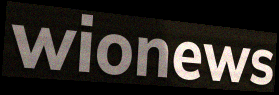
wionews